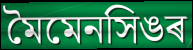
মৈমেনসিঙৰ